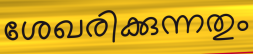
ശേഖരിക്കുന്നതും